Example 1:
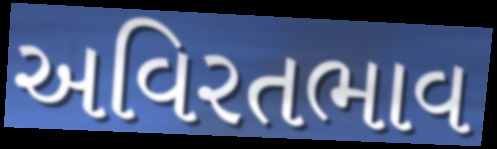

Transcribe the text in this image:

અવિરતભાવ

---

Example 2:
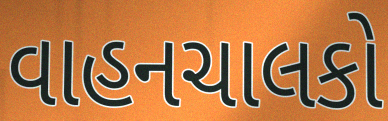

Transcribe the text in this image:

વાહનચાલકો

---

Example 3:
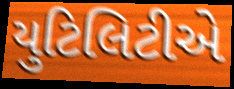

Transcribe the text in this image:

યુટિલિટીએ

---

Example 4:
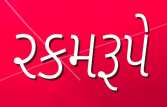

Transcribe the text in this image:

રકમરૂપે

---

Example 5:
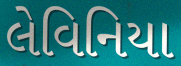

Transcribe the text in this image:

લેવિનિયા